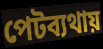
পেটব্যথায়